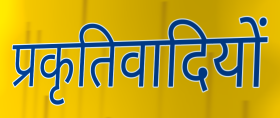
प्रकृतिवादियों